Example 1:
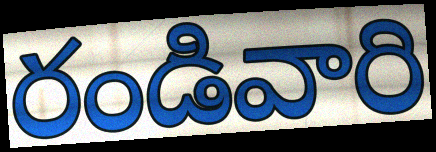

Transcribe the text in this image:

రండివారి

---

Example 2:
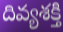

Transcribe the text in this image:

దివ్యశక్తి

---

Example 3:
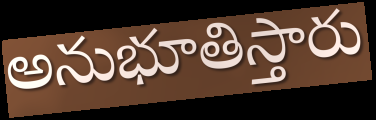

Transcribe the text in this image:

అనుభూతిస్తారు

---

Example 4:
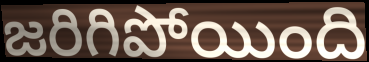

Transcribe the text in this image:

జరిగిపోయింది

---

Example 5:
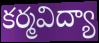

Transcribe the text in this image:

కర్మవిద్యా